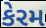
કેરમ